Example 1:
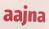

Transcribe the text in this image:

aajna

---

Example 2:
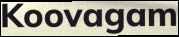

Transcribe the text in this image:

Koovagam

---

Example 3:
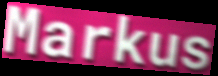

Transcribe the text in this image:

Markus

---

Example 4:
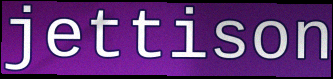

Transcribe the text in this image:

jettison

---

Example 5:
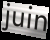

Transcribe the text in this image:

juin